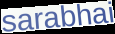
sarabhai